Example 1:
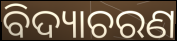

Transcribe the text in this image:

ବିଦ୍ୟାଚରଣ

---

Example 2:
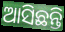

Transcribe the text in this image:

ଆସିଛନ୍ତି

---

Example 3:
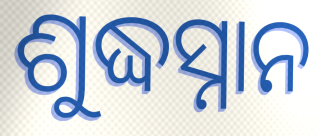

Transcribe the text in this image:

ଶୁଦ୍ଧସ୍ନାନ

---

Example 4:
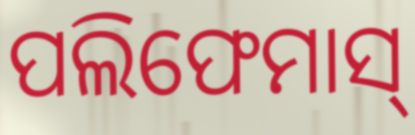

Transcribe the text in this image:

ପଲିଫେମାସ୍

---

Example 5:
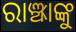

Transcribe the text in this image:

ରାଞ୍ଝାଙ୍କୁ